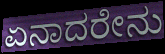
ಏನಾದರೇನು